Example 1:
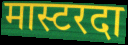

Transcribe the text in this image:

मास्टरदा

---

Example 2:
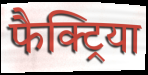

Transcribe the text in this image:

फैक्ट्रिया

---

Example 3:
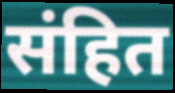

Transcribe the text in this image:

संहित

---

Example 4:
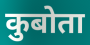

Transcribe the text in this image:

कुबोता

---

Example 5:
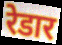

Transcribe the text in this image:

रेडार